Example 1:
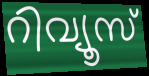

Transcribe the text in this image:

റിവ്യൂസ്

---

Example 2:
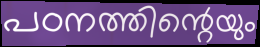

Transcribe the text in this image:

പഠനത്തിന്റെയും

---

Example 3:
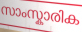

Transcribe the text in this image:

സാംസ്കാരിക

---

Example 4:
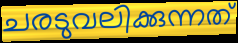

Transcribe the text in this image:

ചരടുവലിക്കുന്നത്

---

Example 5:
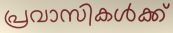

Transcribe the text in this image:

പ്രവാസികൾക്ക്